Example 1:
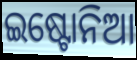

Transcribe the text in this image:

ଇଷ୍ଟୋନିଆ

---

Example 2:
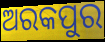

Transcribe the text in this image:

ଅରକପୁର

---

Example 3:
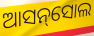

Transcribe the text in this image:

ଆସନ୍‌ସୋଲ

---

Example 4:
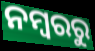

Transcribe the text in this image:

ନମ୍ୱରରୁ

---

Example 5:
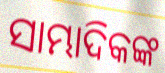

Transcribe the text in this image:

ସାମ୍ଭାଦିକଙ୍କ